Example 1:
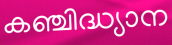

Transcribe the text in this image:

കഞ്ചിദ്ധ്യാന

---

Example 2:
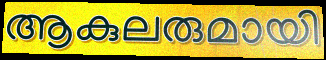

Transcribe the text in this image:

ആകുലരുമായി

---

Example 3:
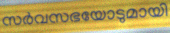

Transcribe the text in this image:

സർവസഭയോടുമായി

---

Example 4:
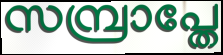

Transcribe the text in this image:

സമ്പ്രാപ്തേ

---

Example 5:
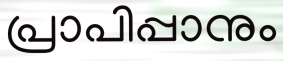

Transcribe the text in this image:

പ്രാപിപ്പാനും